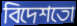
বিদেশতো